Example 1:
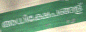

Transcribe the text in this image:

അധിക്ഷേപങ്ങള്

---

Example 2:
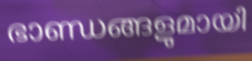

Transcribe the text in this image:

ഭാണ്ഡങ്ങളുമായി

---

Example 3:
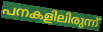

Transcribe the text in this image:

പനകളിലിരുന്ന്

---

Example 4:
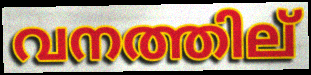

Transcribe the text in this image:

വനത്തില്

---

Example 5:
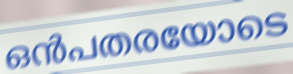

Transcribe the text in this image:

ഒൻപതരയോടെ